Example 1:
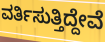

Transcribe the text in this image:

ವರ್ತಿಸುತ್ತಿದ್ದೇವೆ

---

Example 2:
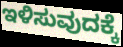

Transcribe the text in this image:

ಇಳಿಸುವುದಕ್ಕೆ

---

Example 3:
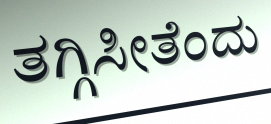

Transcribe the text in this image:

ತಗ್ಗಿಸೀತೆಂದು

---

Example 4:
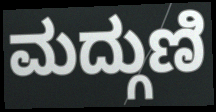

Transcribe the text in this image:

ಮದ್ಗುಣಿ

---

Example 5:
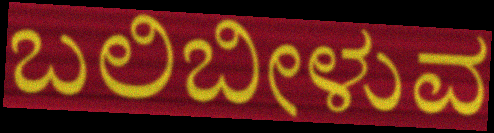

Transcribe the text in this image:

ಬಲಿಬೀಳುವ